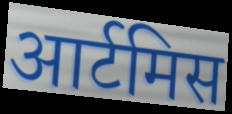
आर्टमिस